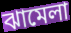
ঝামেলা